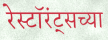
रेस्टॉरंट्सच्या